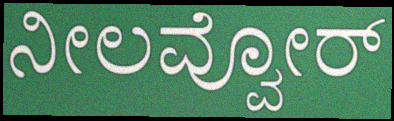
ನೀಲವ್ವೋರ್